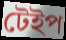
টেইপ